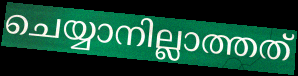
ചെയ്യാനില്ലാത്തത്